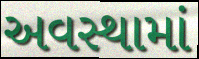
અવસ્થામાં